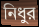
নিধুর